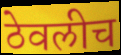
ठेवलीच